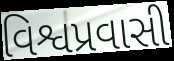
વિશ્વપ્રવાસી